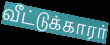
வீட்டுக்காரர்